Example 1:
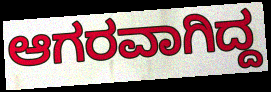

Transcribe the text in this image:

ಆಗರವಾಗಿದ್ದ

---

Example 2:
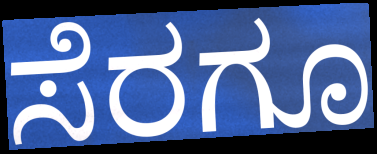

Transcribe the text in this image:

ಸೆರಗೂ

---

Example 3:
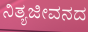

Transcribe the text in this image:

ನಿತ್ಯಜೀವನದ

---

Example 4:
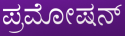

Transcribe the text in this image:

ಪ್ರಮೋಷನ್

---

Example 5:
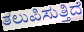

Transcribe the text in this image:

ತಲುಪಿಸುತ್ತಿದೆ